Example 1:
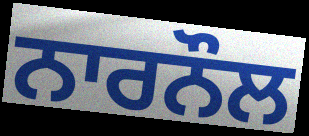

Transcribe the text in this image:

ਨਾਰਨੌਲ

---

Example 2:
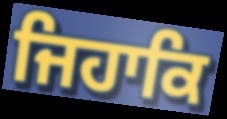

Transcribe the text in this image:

ਜਿਹਾਕਿ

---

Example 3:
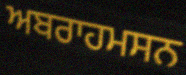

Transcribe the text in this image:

ਅਬਰਾਹਮਸਨ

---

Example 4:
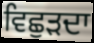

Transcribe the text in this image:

ਵਿਛੁੜਦਾ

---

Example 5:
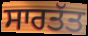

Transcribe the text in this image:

ਸਾਰਤੱਤ